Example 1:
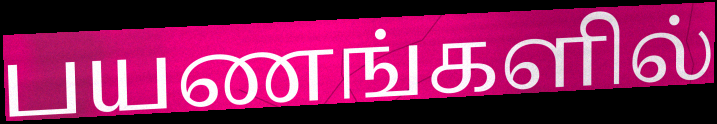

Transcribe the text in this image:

பயணங்களில்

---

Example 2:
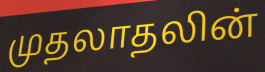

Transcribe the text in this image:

முதலாதலின்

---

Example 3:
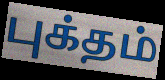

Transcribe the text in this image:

புக்தம்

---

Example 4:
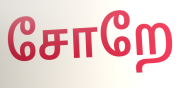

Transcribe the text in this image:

சோறே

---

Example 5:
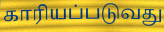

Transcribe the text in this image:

காரியப்படுவது